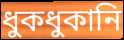
ধুকধুকানি